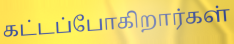
கட்டப்போகிறார்கள்